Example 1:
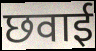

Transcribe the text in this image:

छवाई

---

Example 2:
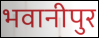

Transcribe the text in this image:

भवानीपुर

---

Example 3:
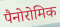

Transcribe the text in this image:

पैनोरोमिक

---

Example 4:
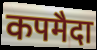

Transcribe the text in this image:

कपमैदा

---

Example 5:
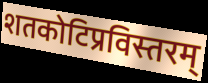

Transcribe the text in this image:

शतकोटिप्रविस्तरम्